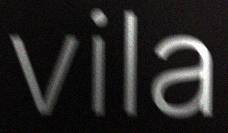
vila